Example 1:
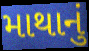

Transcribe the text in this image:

માથાનું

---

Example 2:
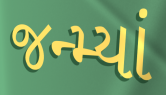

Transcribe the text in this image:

જન્મ્યાં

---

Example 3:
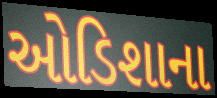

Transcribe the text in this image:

ઓડિશાના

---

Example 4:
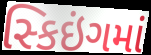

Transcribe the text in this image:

સ્કિઇંગમાં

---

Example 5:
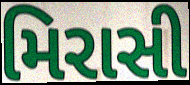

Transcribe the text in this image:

મિરાસી